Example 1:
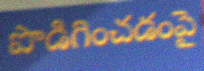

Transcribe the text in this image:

పొడిగించడంపై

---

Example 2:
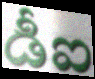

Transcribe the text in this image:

డీఐ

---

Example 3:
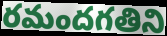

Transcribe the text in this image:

రమందగతిని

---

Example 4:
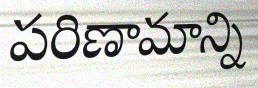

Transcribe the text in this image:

పరిణామాన్ని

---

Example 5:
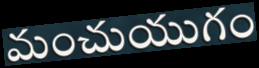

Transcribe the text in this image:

మంచుయుగం